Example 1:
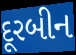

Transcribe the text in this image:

દૂરબીન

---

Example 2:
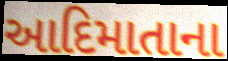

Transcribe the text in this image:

આદિમાતાના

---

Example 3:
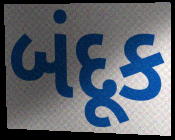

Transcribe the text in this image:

બંદૂક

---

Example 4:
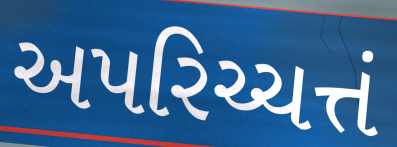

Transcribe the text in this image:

અપરિચ્ચત્તં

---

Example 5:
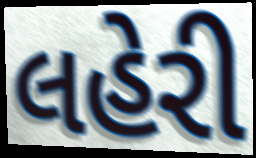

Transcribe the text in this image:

લહેરી